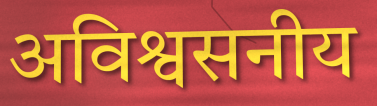
अविश्वसनीय